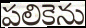
పలికెను